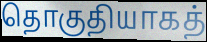
தொகுதியாகத்